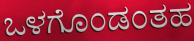
ಒಳಗೊಂಡಂತಹ